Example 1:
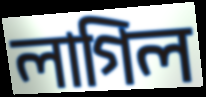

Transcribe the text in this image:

লাগিল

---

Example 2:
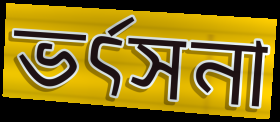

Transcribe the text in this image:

ভৰ্ৎসনা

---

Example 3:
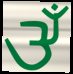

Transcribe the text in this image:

ঔঁ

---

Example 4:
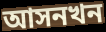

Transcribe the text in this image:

আসনখন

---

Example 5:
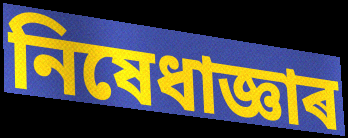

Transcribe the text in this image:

নিষেধাজ্ঞাৰ